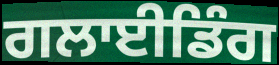
ਗਲਾਈਡਿੰਗ